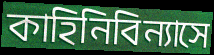
কাহিনিবিন্যাসে